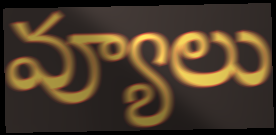
వ్యూలు